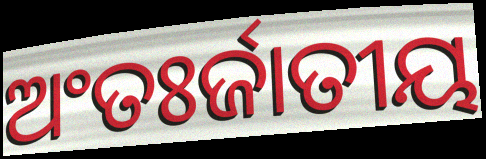
ଅଂତଃର୍ଜାତୀୟ